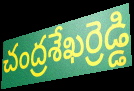
చంద్రశేఖర్రెడ్డి